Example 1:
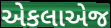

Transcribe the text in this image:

એકલાએજ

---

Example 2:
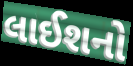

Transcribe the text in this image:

લાઈશનો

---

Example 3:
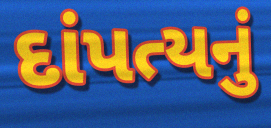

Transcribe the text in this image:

દાંપત્યનું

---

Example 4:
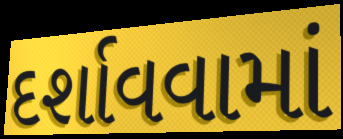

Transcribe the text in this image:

દર્શાવવામાં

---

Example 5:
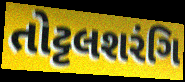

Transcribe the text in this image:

તોટ્ટલશરંગિ